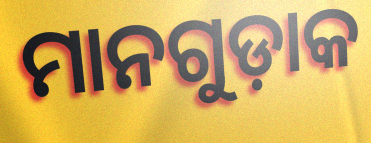
ମାନଗୁଡ଼ାକ